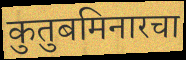
कुतुबमिनारचा